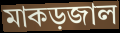
মাকড়জাল